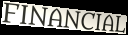
FINANCIAL